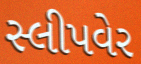
સ્લીપવેર